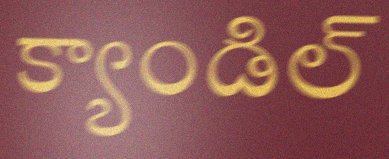
క్యాండిల్